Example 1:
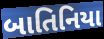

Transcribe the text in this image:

બાતિનિયા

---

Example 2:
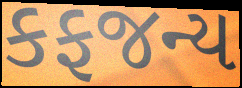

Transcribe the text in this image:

કફજન્ય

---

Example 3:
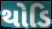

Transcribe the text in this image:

થોડિ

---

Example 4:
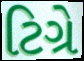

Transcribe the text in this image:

ટિગ્રે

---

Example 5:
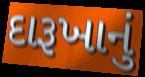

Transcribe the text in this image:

દારૂખાનું